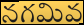
నగమివ